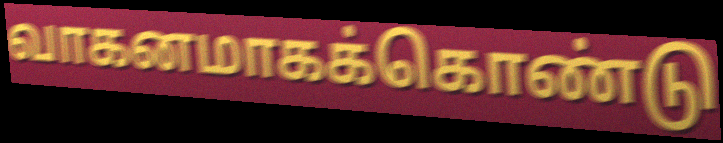
வாகனமாகக்கொண்டு